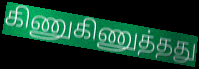
கிணுகிணுத்தது